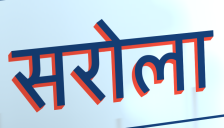
सरोला